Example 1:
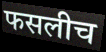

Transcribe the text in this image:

फसलीच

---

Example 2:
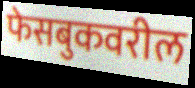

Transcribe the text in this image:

फेसबुकवरील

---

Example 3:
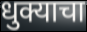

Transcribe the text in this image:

धुक्याचा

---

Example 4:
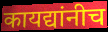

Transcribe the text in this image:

कायद्यांनीच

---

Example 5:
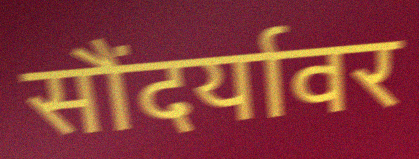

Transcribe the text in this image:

सौंदर्यावर